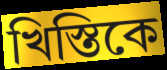
খিস্তিকে